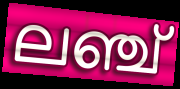
ലഞ്ച്